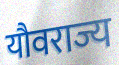
यौवराज्य